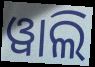
ୱାଲି